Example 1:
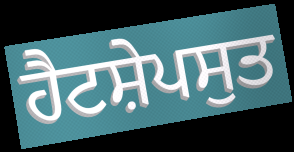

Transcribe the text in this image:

ਹੈਟਸ਼ੇਪਸੁਤ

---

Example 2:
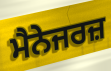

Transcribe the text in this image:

ਮੈਨੇਜਰਜ਼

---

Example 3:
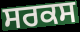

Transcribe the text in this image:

ਸਰਕਸ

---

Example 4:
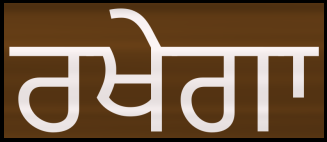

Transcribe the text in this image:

ਰਖੇਗਾ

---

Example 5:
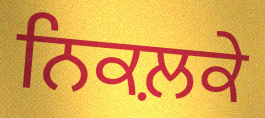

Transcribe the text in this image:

ਨਿਕਲ਼ਕੇ